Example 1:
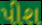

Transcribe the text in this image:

પીશ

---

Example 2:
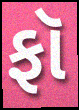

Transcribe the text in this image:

ફૉ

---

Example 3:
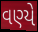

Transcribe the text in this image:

વણ્યે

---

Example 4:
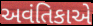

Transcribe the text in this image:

અવંતિકાએ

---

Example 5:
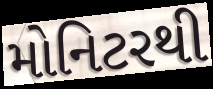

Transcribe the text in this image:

મોનિટરથી